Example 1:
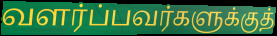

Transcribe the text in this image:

வளர்ப்பவர்களுக்குத்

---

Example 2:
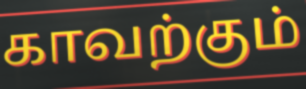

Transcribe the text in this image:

காவற்கும்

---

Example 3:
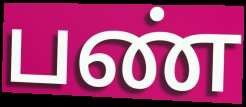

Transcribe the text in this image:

பண்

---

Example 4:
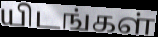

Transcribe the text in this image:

யிடங்கள்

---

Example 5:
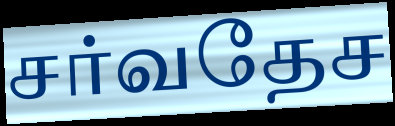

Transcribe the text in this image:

சர்வதேச